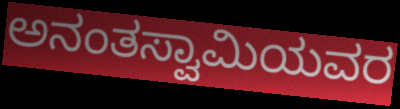
ಅನಂತಸ್ವಾಮಿಯವರ